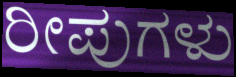
ರೀಪುಗಳು